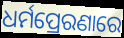
ଧର୍ମପ୍ରେରଣାରେ